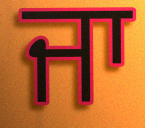
ਜਾ